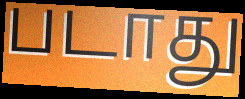
படாது